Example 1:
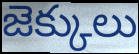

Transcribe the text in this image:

జెక్కులు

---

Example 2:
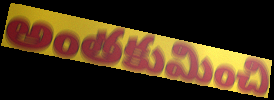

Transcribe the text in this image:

అంతకుమించి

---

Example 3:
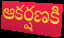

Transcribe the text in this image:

ఆకర్షణకి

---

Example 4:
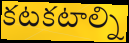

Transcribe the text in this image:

కటకటాల్ని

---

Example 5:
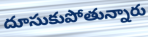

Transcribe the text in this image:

దూసుకుపోతున్నారు